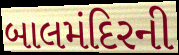
બાલમંદિરની